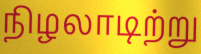
நிழலாடிற்று